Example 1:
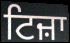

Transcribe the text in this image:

ਟਿਜ਼ਾ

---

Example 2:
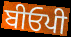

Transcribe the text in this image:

ਬੀਓਪੀ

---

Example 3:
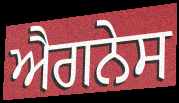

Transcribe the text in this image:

ਐਗਨੇਸ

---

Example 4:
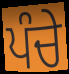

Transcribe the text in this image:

ਪੰਚੇ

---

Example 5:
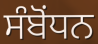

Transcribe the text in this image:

ਸੰਬੋੰਧਨ